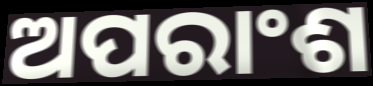
ଅପରାଂଶ